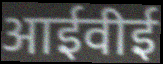
आईवीई